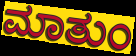
ಮಾತುಂ